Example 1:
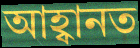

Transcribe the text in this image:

আহ্বানত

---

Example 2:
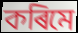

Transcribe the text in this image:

কৰিমে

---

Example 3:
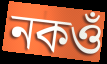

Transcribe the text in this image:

নকওঁ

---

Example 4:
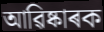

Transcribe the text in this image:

আৱিষ্কাৰক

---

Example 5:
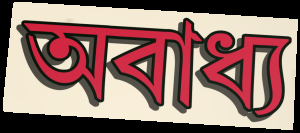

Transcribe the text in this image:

অবাধ্য